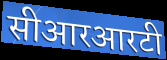
सीआरआरटी